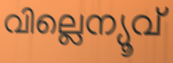
വില്ലെന്യൂവ്